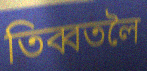
তিব্বতলৈ